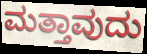
ಮತ್ತಾವುದು